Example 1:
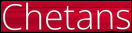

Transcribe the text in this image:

Chetans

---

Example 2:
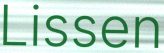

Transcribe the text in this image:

Lissen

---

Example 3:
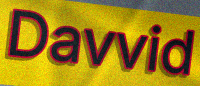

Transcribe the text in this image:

Davvid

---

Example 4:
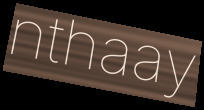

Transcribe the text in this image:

nthaay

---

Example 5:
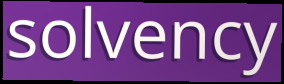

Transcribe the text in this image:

solvency